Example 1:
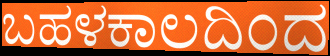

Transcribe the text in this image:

ಬಹಳಕಾಲದಿಂದ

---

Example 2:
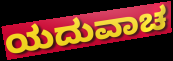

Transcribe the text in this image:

ಯದುವಾಚ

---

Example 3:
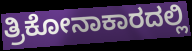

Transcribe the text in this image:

ತ್ರಿಕೋನಾಕಾರದಲ್ಲಿ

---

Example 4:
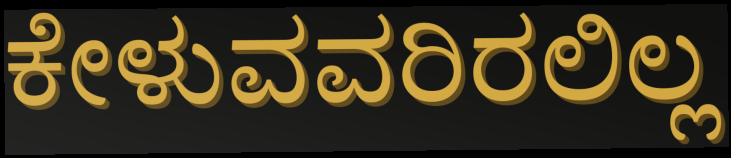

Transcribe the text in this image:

ಕೇಳುವವರಿರಲಿಲ್ಲ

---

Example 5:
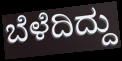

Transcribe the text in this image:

ಬೆಳೆದಿದ್ದು